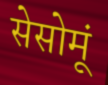
सेसोमूं